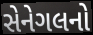
સેનેગલનો